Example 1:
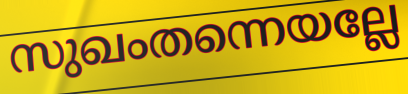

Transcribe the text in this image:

സുഖംതന്നെയല്ലേ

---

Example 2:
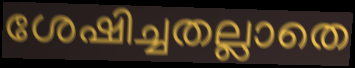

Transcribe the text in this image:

ശേഷിച്ചതല്ലാതെ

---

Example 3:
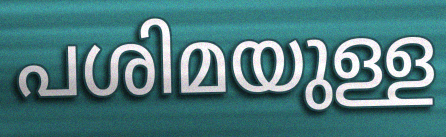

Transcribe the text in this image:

പശിമയുള്ള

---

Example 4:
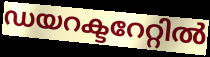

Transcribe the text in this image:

ഡയറക്ടറേറ്റിൽ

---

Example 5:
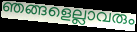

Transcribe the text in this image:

ഞങ്ങളെല്ലാവരും